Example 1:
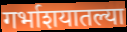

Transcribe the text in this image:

गर्भाशयातल्या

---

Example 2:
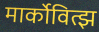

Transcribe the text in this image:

मार्कोवित्झ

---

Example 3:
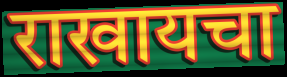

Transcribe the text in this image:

राखायचा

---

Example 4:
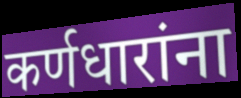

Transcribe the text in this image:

कर्णधारांना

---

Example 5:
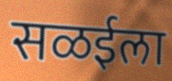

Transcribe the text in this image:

सळईला